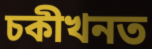
চকীখনত